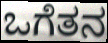
ಒಗೆತನ